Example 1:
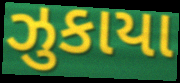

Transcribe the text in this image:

ઝુકાયા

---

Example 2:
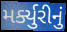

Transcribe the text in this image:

મર્ક્યુરીનું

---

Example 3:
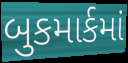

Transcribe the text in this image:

બુકમાર્કમાં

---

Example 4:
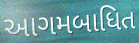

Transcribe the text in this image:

આગમબાધિત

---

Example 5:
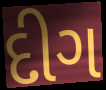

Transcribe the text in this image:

દીગ